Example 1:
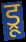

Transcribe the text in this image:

ड्रू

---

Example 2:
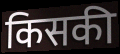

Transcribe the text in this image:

किसकी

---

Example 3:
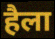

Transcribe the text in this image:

हैला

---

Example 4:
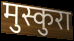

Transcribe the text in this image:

मुस्कुरा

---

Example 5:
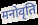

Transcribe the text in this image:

मनोवृति